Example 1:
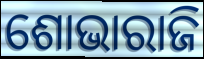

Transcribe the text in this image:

ଶୋଭାରାଜି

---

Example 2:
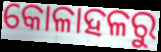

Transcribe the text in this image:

କୋଳାହଳରୁ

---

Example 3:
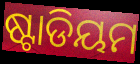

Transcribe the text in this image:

ଷ୍ଟାଡିୟମ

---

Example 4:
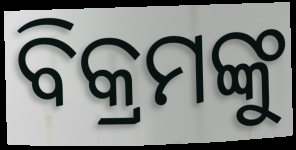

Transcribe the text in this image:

ବିକ୍ରମଙ୍କୁ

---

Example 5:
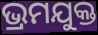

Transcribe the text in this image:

ଭ୍ରମଯୁକ୍ତ